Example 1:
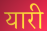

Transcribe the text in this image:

यारी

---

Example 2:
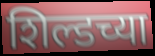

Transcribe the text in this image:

शिल्डच्या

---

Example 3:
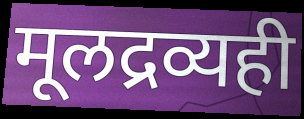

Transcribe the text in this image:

मूलद्रव्यही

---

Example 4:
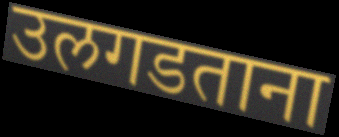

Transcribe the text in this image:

उलगडताना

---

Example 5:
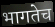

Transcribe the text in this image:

भागतेच